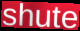
shute